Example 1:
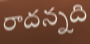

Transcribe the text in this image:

రాదన్నది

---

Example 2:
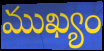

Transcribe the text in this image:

ముఖ్యం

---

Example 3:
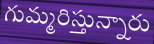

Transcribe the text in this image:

గుమ్మరిస్తున్నారు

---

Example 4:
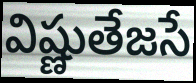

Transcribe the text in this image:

విష్ణుతేజసే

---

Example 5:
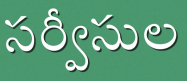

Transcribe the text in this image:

సర్వీసుల